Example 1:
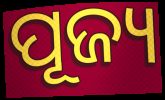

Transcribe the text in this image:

ପୂଜ୍ୟ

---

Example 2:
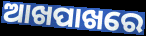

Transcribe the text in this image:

ଆଖପାଖରେ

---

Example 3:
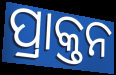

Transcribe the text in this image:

ପ୍ରାକ୍ତନ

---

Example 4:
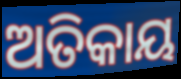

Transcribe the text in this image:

ଅତିକାୟ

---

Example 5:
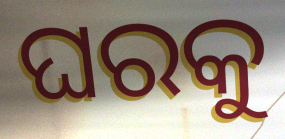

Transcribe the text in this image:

ଘରକୁ